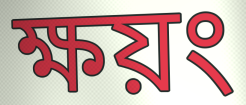
ক্ষয়ং